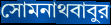
সোমনাথবাবুর